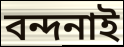
বন্দনাই